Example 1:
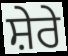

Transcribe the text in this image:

ਸ਼ੇਰੇ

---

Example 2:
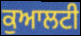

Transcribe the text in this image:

ਕੁਆਲਟੀ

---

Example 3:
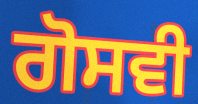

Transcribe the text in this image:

ਗੋਸਵੀ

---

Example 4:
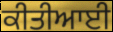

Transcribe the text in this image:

ਕੀਤੀਆਈ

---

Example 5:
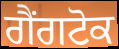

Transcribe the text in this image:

ਗੈਂਗਟੋਕ